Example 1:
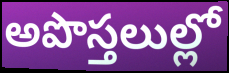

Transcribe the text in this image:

అపొస్తలుల్లో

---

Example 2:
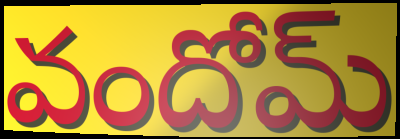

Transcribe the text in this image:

వందోమ్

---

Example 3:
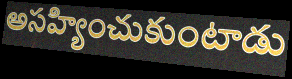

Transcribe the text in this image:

అసహ్యించుకుంటాడు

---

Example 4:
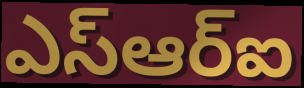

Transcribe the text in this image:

ఎస్ఆర్ఐ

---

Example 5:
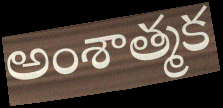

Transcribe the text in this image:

అంశాత్మక